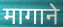
मागाने